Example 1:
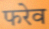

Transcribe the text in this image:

फरेव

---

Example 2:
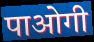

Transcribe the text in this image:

पाओगी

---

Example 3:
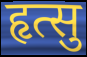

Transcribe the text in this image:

हृत्सु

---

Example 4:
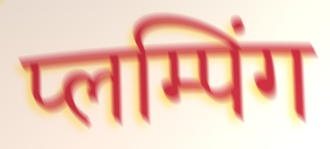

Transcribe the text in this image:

प्लम्पिंग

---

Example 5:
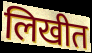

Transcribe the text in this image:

लिखीत